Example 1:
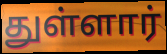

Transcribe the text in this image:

துள்ளார்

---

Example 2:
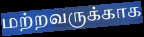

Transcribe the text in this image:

மற்றவருக்காக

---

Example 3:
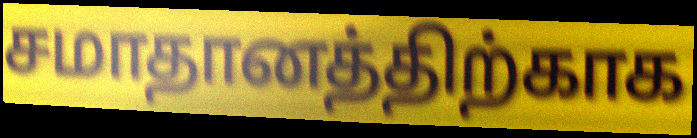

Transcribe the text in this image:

சமாதானத்திற்காக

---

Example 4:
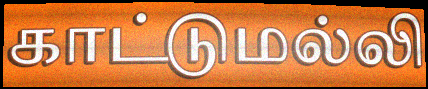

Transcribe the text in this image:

காட்டுமல்லி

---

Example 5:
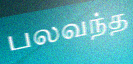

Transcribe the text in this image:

பலவந்த